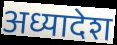
अध्यादेश